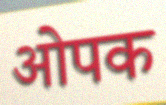
ओपक